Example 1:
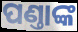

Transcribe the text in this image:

ପଣ୍ତାଙ୍କ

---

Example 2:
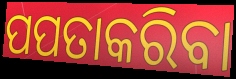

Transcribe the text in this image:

ପପତାକରିବା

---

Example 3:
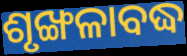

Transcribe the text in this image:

ଶୃଙ୍ଖଳାବଦ୍ଧ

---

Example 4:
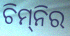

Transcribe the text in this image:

ଚିମ୍‌ନିର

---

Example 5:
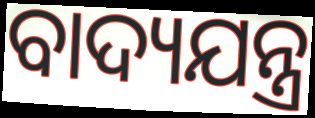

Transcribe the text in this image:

ବାଦ୍ୟଯନ୍ତ୍ର